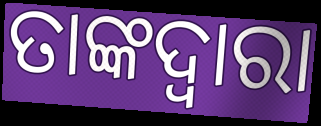
ତାଙ୍କଦ୍ଵାରା